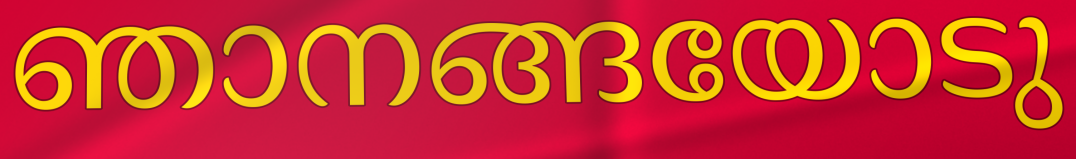
ഞാനങ്ങയോടു